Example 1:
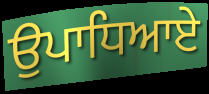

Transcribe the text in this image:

ਉਪਾਧਿਆਏ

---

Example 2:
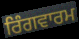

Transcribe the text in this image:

ਰਿੰਗਵਾਰਮ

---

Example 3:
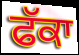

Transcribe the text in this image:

ਫੱਕਾ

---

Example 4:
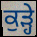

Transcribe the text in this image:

ਕੁੜ੍ਹੇ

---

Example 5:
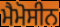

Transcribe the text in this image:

ਮੈਮੋਸੀਨ